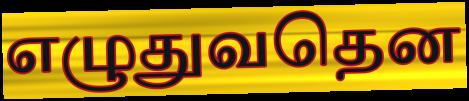
எழுதுவதென